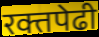
रक्तपेढी